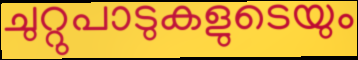
ചുറ്റുപാടുകളുടെയും